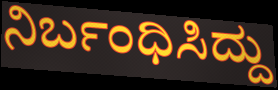
ನಿರ್ಬಂಧಿಸಿದ್ದು